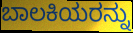
ಬಾಲಕಿಯರನ್ನು